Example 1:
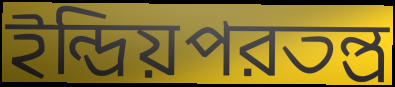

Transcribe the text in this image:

ইন্দ্রিয়পরতন্ত্র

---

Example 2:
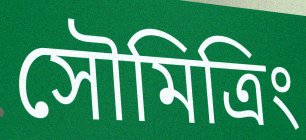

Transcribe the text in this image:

সৌমিত্রিং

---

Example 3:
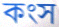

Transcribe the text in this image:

কংস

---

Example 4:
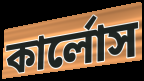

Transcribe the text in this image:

কার্লোস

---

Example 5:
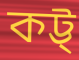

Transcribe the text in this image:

কট্ট্